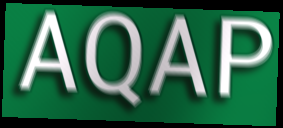
AQAP